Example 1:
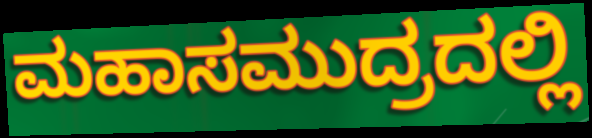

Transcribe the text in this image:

ಮಹಾಸಮುದ್ರದಲ್ಲಿ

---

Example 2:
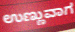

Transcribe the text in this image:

ಉಣ್ಣುವಾಗ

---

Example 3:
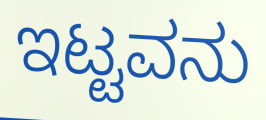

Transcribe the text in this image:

ಇಟ್ಟವನು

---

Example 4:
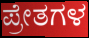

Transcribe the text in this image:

ಪ್ರೇತಗಳ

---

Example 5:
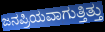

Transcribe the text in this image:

ಜನಪ್ರಿಯವಾಗುತ್ತಿತ್ತು